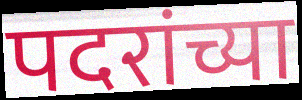
पदरांच्या